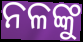
ନଳଙ୍କୁ